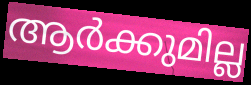
ആർക്കുമില്ല